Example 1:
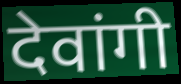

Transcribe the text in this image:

देवांगी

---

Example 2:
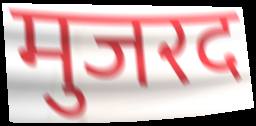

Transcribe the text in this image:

मुजरद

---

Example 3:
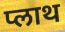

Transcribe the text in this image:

प्लाथ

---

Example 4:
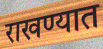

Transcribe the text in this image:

राखण्यात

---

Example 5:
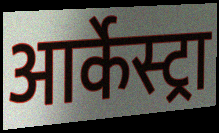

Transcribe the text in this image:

आर्केस्ट्रा